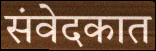
संवेदकात